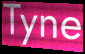
Tyne